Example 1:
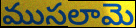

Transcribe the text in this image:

ముసలామె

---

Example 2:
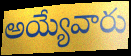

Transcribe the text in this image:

అయ్యేవారు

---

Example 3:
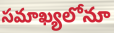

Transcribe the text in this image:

సమాఖ్యలోనూ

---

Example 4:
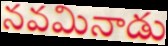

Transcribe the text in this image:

నవమినాడు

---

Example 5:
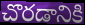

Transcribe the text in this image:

చొరడానికి